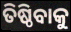
ତିଷ୍ଠିବାକୁ